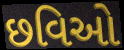
છવિઓ